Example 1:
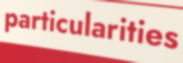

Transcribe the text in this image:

particularities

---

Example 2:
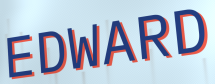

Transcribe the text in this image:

EDWARD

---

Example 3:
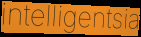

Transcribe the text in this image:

intelligentsia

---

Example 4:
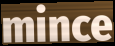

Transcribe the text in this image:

mince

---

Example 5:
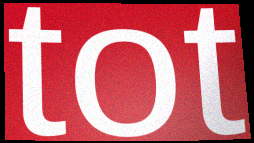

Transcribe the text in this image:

tot